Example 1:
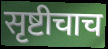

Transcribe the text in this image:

सृष्टीचाच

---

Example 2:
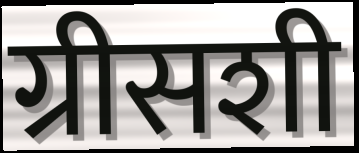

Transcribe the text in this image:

ग्रीसशी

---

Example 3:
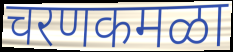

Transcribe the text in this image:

चरणकमळा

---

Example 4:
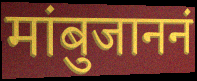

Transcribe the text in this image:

मांबुजाननं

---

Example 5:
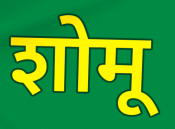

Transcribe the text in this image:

शोमू